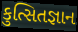
કુત્સિતજ્ઞાન